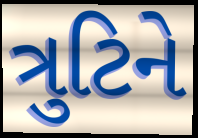
ત્રુટિને